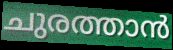
ചുരത്താൻ